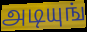
அடியுங்